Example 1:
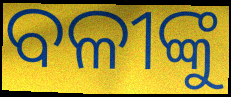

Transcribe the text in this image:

ବଳୀଙ୍କୁ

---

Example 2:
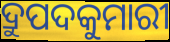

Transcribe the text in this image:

ଦ୍ରୁପଦକୁମାରୀ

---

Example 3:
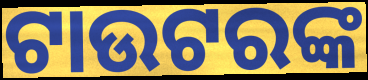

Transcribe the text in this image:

ଟାଉଟରଙ୍କ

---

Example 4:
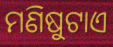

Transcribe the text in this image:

ମଣିଷୁଟାଏ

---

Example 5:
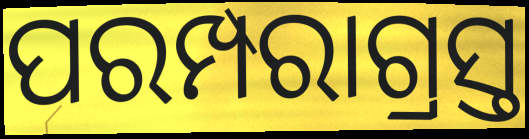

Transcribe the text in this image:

ପରମ୍ପରାଗ୍ରସ୍ତ